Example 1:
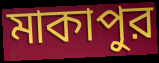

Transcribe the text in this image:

মাকাপুর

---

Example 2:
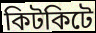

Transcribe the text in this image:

কিটকিটে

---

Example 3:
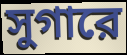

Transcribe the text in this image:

সুগারে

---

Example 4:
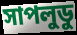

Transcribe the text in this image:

সাপলুডু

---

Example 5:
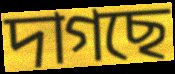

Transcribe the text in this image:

দাগছে